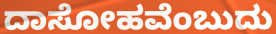
ದಾಸೋಹವೆಂಬುದು